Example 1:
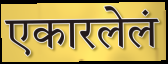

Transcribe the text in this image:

एकारलेलं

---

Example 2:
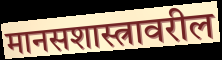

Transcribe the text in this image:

मानसशास्त्रावरील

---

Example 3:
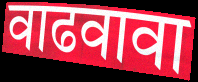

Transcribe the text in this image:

वाढवावा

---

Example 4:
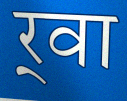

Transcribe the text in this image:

र्वा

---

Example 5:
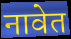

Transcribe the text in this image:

नावेत